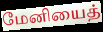
மேனியைத்